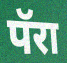
पॅरा